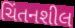
ચિંતનશીલ